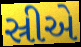
સ્રીએ